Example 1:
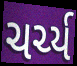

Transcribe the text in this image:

ચર્ચ્ય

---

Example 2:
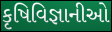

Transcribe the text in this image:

કૃષિવિજ્ઞાનીઓ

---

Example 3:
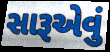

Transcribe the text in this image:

સારૂએવું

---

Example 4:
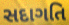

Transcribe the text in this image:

સદાગતિ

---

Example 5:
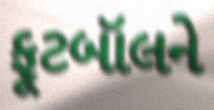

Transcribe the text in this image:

ફૂટબૉલને